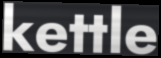
kettle